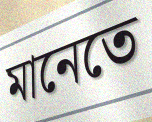
মানেতে